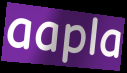
aapla